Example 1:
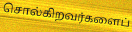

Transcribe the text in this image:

சொல்கிறவர்களைப்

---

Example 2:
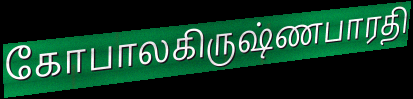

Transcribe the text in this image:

கோபாலகிருஷ்ணபாரதி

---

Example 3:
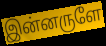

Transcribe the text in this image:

இன்னருளே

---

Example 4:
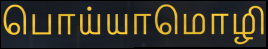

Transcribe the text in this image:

பொய்யாமொழி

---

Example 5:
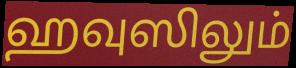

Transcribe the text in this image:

ஹவுஸிலும்